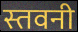
स्तवनी